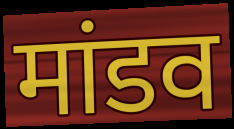
मांडव